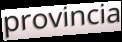
provincia